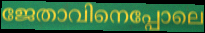
ജേതാവിനെപ്പോലെ